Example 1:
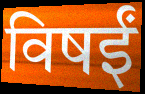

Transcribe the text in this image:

विषईं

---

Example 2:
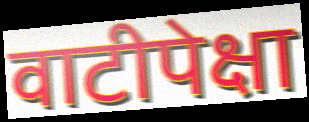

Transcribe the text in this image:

वाटीपेक्षा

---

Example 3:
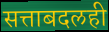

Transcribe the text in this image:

सत्ताबदलही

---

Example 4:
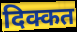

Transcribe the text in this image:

दिक्कत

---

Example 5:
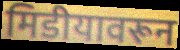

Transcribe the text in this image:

मिडीयावरून